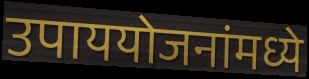
उपाययोजनांमध्ये